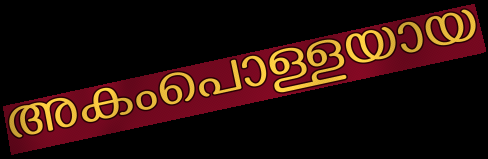
അകംപൊള്ളയായ